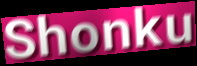
Shonku